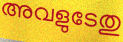
അവളുടേതു